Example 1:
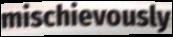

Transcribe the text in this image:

mischievously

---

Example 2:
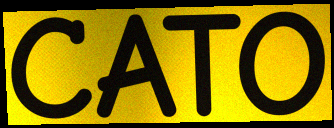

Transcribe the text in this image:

CATO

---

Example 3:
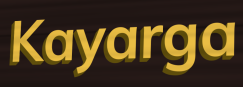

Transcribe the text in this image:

Kayarga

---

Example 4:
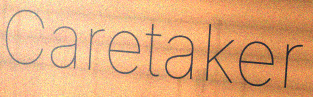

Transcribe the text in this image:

Caretaker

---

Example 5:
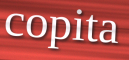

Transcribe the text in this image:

copita